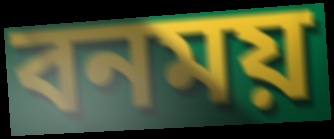
বনময়